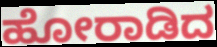
ಹೋರಾಡಿದ